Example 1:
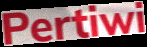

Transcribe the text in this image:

Pertiwi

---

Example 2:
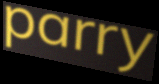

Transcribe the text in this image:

parry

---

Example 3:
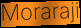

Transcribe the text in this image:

Moraraji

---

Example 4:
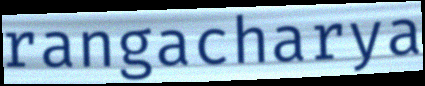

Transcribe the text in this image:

rangacharya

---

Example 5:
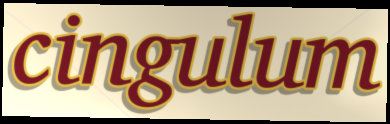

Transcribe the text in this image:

cingulum